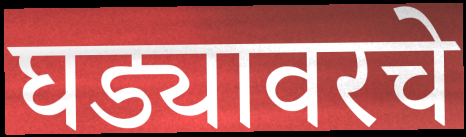
घड्यावरचे